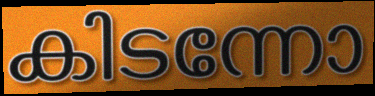
കിടന്നോ